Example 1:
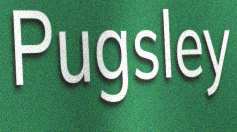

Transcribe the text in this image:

Pugsley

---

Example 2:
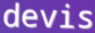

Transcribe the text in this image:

devis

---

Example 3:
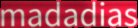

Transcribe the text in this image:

madadias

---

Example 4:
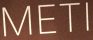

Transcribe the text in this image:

METI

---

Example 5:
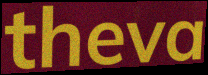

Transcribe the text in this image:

theva